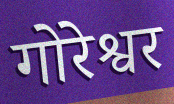
गोरेश्वर